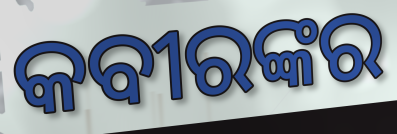
କବୀରଙ୍କର